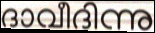
ദാവീദിന്നു